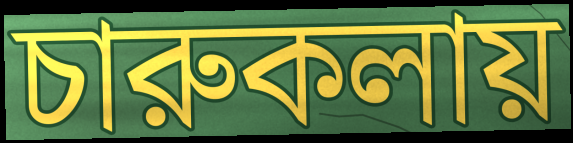
চারুকলায়